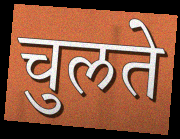
चुलते